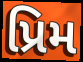
પ્રિમ